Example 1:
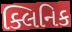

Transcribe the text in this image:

ક્લિનિક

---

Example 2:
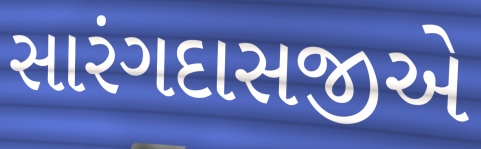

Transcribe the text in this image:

સારંગદાસજીએ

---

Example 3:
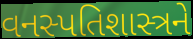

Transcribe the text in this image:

વનસ્પતિશાસ્ત્રને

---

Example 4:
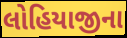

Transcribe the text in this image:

લોહિયાજીના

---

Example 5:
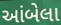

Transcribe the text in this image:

આંબેલા